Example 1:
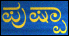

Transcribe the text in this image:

ಪುಷ್ಪಾ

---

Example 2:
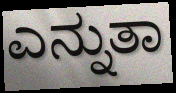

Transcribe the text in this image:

ಎನ್ನುತಾ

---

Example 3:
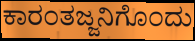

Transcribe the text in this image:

ಕಾರಂತಜ್ಜನಿಗೊಂದು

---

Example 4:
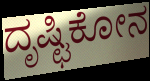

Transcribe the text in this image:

ದೃಷ್ಟಿಕೋನ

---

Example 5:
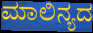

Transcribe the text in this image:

ಮಾಲಿನ್ಯದ